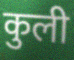
कुली